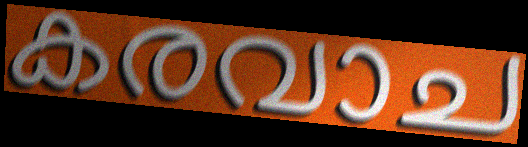
കരവാച